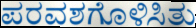
ಪರವಶಗೊಳಿಸಿತು